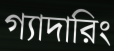
গ্যাদারিং